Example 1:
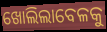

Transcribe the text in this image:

ଖୋଲିଲାବେଳକୁ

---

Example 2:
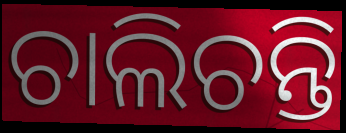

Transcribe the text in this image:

ଚାଲିଚନ୍ତି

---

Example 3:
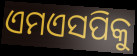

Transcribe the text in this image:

ଏମଏସପିକୁ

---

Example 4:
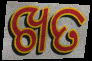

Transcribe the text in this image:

ଖତ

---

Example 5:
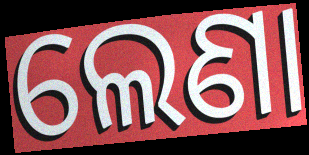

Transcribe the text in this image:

ଲେଣା